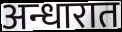
अन्धारात